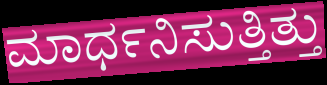
ಮಾರ್ಧನಿಸುತ್ತಿತ್ತು